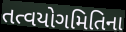
તત્વયોગમિતિના